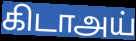
கிடாஅய்